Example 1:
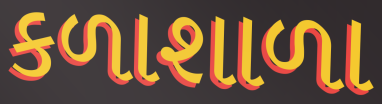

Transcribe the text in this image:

કળાશાળા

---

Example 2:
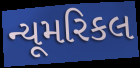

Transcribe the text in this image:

ન્યૂમરિકલ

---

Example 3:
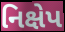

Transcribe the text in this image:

નિક્ષેપ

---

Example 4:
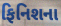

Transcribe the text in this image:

ફિનિશના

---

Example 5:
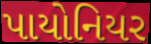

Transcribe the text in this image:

પાયોનિયર